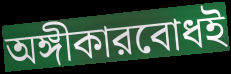
অঙ্গীকারবোধই